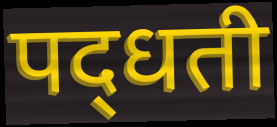
पद्धती